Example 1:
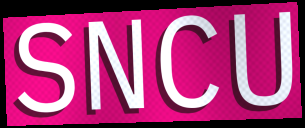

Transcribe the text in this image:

SNCU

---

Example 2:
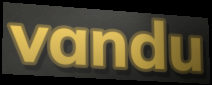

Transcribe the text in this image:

vandu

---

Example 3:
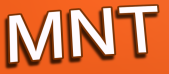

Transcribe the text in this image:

MNT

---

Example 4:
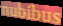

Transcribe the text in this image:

nubibus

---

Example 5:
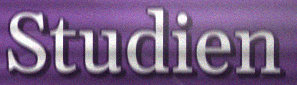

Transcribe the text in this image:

Studien